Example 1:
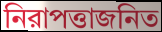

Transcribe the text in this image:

নিরাপত্তাজনিত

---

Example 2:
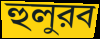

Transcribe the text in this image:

হুলুরব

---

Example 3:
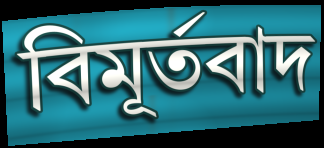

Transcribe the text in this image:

বিমূর্তবাদ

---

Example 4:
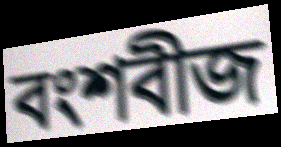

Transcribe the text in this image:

বংশবীজ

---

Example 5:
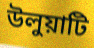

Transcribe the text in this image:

উলুয়াটি